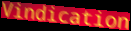
Vindication